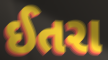
ઈતરા